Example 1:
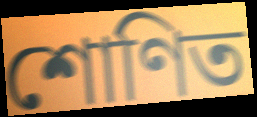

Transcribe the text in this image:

শোণিত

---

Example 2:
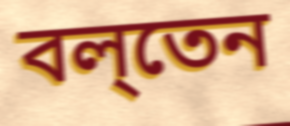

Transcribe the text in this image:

বল্‌তেন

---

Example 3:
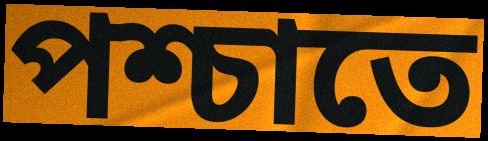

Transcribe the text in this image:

পশ্চাতে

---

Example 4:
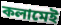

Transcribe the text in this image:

কলামেই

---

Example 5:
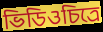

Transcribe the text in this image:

ভিডিওচিত্রে